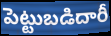
పెట్టుబడిదారీ